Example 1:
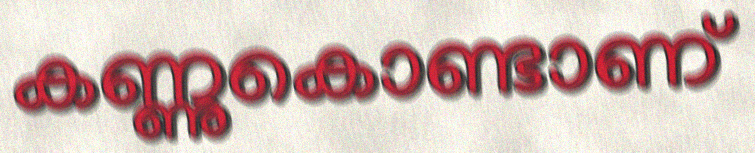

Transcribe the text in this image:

കണ്ണുകൊണ്ടാണ്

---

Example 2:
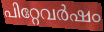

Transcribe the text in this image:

പിറ്റേവർഷം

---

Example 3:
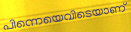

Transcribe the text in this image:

പിന്നെയെവിടെയാണ്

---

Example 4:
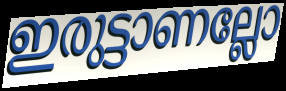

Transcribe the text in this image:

ഇരുട്ടാണല്ലോ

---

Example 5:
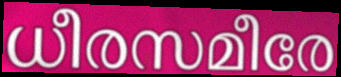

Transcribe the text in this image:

ധീരസമീരേ